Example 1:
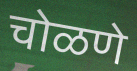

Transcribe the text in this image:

चोळणे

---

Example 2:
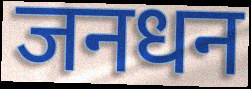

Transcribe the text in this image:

जनधन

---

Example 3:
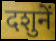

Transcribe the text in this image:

दशुनें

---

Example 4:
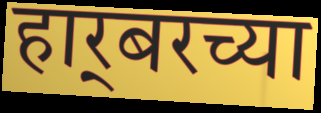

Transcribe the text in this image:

हार्बरच्या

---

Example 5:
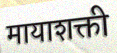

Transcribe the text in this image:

मायाशक्ती